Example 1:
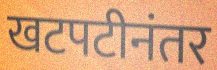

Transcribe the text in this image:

खटपटीनंतर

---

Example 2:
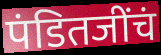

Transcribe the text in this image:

पंडितजींचं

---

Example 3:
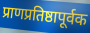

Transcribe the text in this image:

प्राणप्रतिष्ठापूर्वक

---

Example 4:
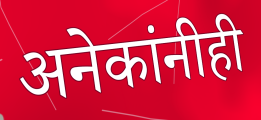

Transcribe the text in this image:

अनेकांनीही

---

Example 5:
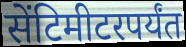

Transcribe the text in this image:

सेंटिमीटरपर्यंत